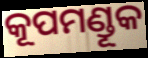
କୂପମଣ୍ଡୂକ